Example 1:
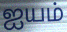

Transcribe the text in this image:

ஐயம்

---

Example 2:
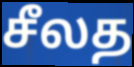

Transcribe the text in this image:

சீலத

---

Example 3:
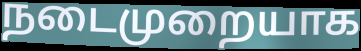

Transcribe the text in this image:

நடைமுறையாக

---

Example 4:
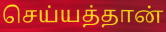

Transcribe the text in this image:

செய்யத்தான்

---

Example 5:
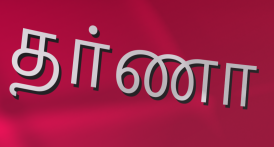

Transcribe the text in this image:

தர்ணா